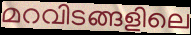
മറവിടങ്ങളിലെ